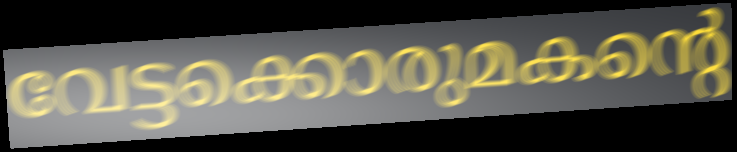
വേട്ടക്കൊരുമകന്റെ